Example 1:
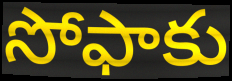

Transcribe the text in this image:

సోఫాకు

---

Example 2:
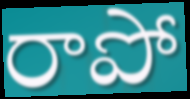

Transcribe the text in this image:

రాపో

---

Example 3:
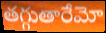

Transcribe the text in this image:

తగ్గుతారేమో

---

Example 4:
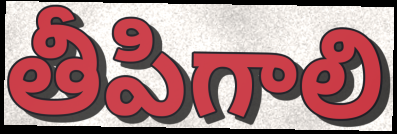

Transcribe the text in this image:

తీపిగాలి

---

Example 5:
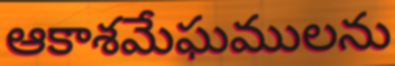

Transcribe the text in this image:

ఆకాశమేఘములను